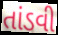
તાંડવી